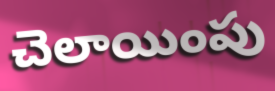
చెలాయింపు